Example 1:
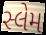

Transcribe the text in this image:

સ્લેમ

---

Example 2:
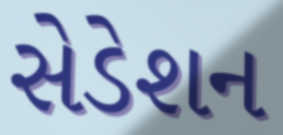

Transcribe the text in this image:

સેડેશન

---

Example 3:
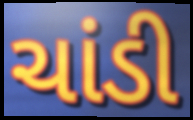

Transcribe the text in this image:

ચાંડી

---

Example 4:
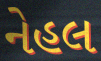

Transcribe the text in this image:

નેહલ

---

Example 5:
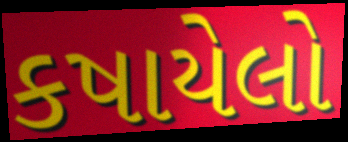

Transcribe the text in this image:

કષાયેલો